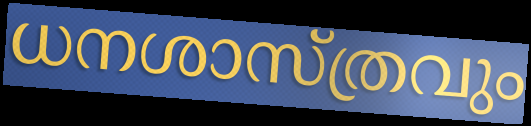
ധനശാസ്ത്രവും